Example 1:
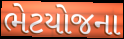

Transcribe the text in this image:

ભેટયોજના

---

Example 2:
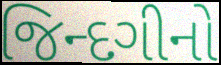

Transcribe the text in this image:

જિન્દગીનો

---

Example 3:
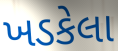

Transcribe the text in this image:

ખડકેલા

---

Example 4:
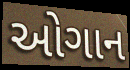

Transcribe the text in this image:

ઓગાન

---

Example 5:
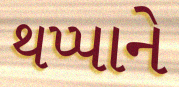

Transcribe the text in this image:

થપ્પાને